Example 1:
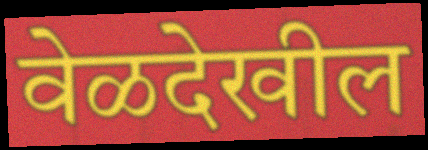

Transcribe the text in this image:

वेळदेखील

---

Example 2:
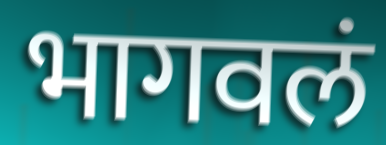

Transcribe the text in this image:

भागवलं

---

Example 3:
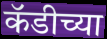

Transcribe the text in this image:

कॅडीच्या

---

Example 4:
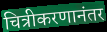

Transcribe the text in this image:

चित्रीकरणानंतर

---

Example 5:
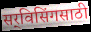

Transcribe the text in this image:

सर्विसिंगसाठी